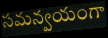
సమన్వయంగా